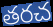
తరచ